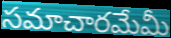
సమాచారమేమీ